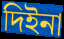
দিইনা